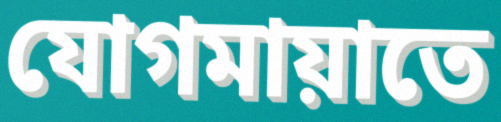
যোগমায়াতে